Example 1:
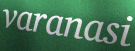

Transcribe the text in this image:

varanasi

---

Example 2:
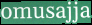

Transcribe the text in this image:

omusajja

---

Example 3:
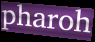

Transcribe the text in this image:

pharoh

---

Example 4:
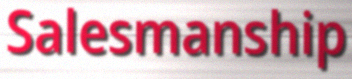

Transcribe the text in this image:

Salesmanship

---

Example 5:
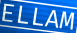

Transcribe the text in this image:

ELLAM